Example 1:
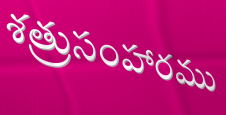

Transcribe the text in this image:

శత్రుసంహారము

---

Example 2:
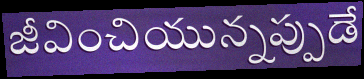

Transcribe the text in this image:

జీవించియున్నప్పుడే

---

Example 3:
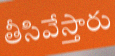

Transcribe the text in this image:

తీసివేస్తారు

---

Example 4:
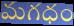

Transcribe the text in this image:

మగధం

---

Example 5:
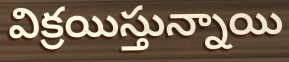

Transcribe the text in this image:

విక్రయిస్తున్నాయి